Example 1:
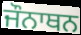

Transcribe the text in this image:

ਜੌਨਾਥਨ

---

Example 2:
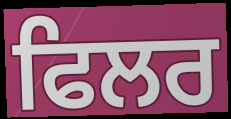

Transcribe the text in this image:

ਫਿਲਰ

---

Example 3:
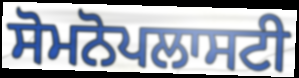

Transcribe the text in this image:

ਸੋਮਨੋਪਲਾਸਟੀ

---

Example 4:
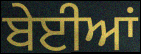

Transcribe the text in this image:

ਬੇਈਆਂ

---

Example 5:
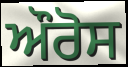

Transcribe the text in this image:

ਔਰੋਸ